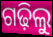
ଗଢ଼ିଲୁ